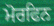
ਮੋਰਫਿਨ